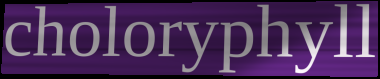
choloryphyll